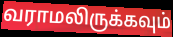
வராமலிருக்கவும்